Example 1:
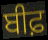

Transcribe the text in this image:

ਬੀਫ਼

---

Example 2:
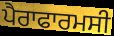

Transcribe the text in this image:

ਪੈਰਾਫਾਰਮਸੀ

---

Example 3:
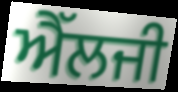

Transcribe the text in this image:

ਐੱਲਜੀ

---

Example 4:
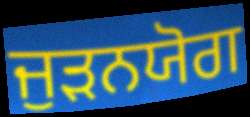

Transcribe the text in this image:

ਜੁੜਨਯੋਗ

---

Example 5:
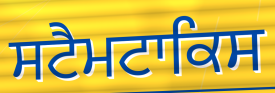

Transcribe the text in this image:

ਸਟੈਮਟਾਕਿਸ